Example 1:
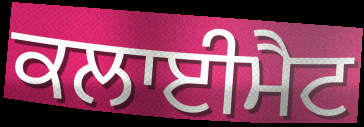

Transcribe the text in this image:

ਕਲਾਈਮੈਟ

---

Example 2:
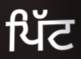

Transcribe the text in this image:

ਪਿੱਟ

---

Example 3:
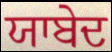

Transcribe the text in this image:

ਯਾਬੇਦ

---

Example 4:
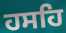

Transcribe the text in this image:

ਹਸਹਿ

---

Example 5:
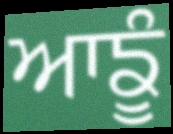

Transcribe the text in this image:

ਆਙੂੰ